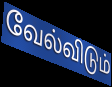
வேல்விடும்